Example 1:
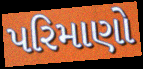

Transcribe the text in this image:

પરિમાણો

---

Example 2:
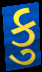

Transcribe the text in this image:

કુ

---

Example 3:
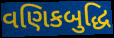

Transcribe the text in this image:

વણિકબુદ્ધિ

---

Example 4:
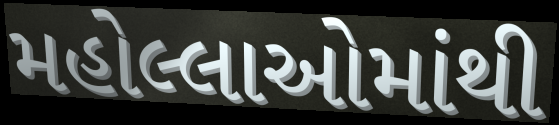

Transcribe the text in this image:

મહોલ્લાઓમાંથી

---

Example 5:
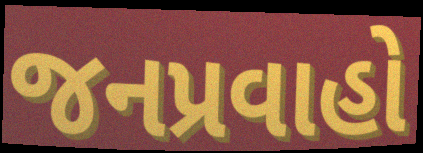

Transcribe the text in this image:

જનપ્રવાહો